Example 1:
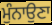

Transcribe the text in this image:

ਮੁੰਨਾਉਣਾ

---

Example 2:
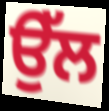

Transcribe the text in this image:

ਉੱਲ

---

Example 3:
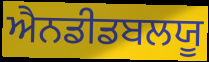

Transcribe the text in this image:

ਐਨਡੀਡਬਲਯੂ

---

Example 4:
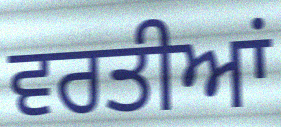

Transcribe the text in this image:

ਵਰਤੀਆਂ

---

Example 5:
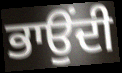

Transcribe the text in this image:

ਭਾਉਂਦੀ